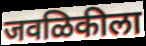
जवळिकीला